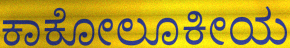
ಕಾಕೋಲೂಕೀಯ